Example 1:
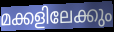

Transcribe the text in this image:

മക്കളിലേക്കും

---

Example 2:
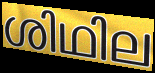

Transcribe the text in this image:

ശിഥില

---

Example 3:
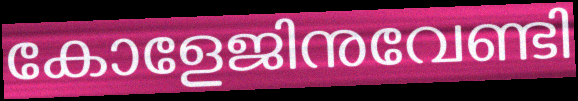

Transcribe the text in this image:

കോളേജിനുവേണ്ടി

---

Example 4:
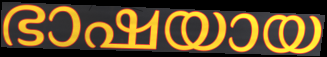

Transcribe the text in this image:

ഭാഷയായ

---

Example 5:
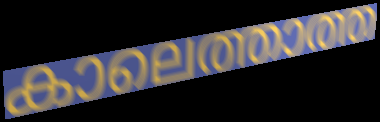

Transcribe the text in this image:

കാലെത്താത്ത